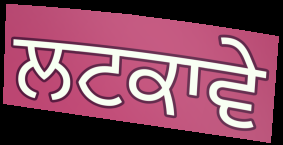
ਲਟਕਾਵੇ